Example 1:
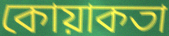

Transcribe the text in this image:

কোয়াকতা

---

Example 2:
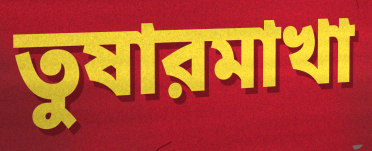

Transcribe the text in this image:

তুষারমাখা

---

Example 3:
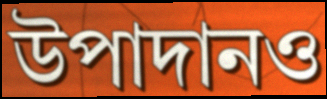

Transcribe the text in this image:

উপাদানও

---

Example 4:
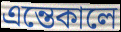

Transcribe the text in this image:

এন্তেকালে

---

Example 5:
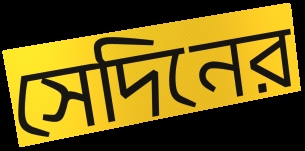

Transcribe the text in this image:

সেদিনের